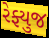
રેફ્યુજ